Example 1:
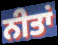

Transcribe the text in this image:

ਨੀਤਾਂ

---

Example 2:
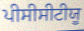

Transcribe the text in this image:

ਪੀਸੀਸੀਟੀਯੂ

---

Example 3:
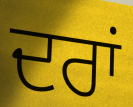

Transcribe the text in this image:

ਦਰਾਂ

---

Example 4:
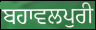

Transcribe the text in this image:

ਬਹਾਵਲਪੁਰੀ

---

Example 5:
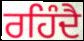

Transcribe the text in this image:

ਰਹਿੰਦੈ